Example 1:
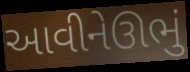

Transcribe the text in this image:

આવીનેઊભું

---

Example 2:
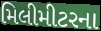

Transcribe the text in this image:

મિલીમીટરના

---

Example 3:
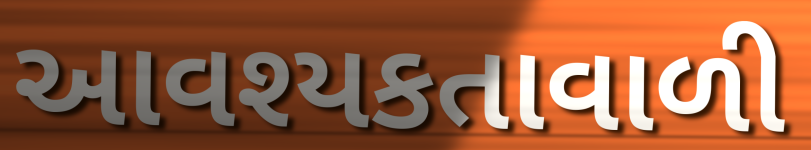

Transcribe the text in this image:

આવશ્યકતાવાળી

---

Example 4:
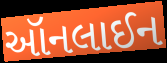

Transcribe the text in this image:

ઑનલાઈન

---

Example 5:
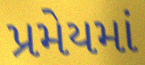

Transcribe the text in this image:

પ્રમેયમાં